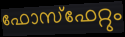
ഫോസ്ഫേറ്റും